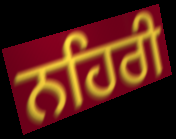
ਨਹਿਰੀ